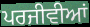
ਪਰਜੀਵੀਆਂ